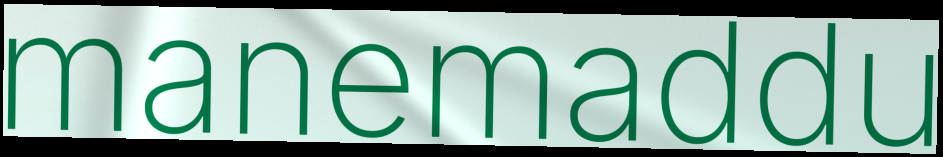
manemaddu